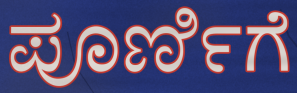
ಪೂರ್ಣಿಗೆ